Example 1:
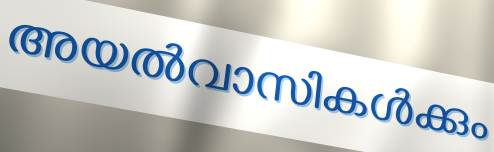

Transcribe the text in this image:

അയൽവാസികൾക്കും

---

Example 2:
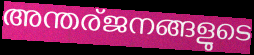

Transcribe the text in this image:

അന്തര്ജനങ്ങളുടെ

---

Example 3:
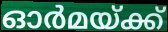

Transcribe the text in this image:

ഓർമയ്ക്ക്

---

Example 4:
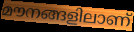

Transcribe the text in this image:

മൗനങ്ങളിലാണ്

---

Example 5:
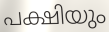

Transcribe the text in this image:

പക്ഷിയും